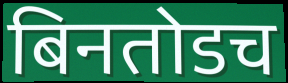
बिनतोडच